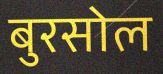
बुरसोल